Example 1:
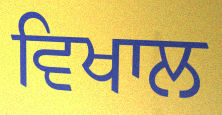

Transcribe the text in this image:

ਵਿਖਾਲ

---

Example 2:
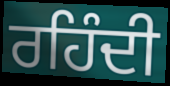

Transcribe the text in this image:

ਰਹਿੰਦੀ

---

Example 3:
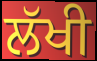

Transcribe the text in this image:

ਲੱਖੀ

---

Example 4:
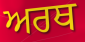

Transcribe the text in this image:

ਅਰਥ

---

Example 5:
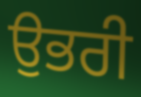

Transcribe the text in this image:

ਉਭਰੀ